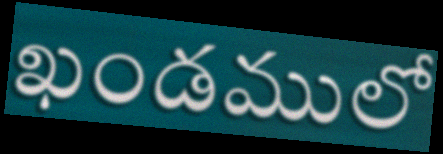
ఖండములో